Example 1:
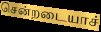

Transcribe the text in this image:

சென்றடையாச்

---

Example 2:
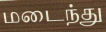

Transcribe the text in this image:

மடைந்து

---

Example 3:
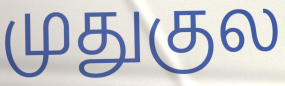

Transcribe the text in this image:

முதுகுல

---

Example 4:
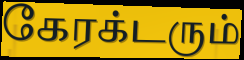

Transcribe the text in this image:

கேரக்டரும்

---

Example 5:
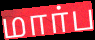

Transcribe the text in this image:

மார்ப